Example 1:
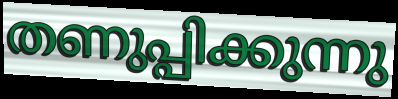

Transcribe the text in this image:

തണുപ്പിക്കുന്നു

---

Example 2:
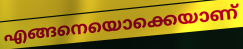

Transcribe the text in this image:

എങ്ങനെയൊക്കെയാണ്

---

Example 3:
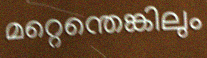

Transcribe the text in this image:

മറ്റെന്തെങ്കിലും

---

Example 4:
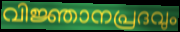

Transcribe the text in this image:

വിജ്ഞാനപ്രദവും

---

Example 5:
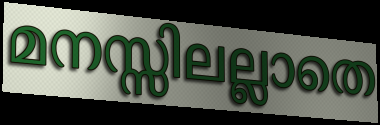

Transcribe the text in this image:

മനസ്സിലല്ലാതെ